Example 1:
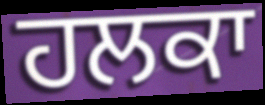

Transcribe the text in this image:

ਹਲਕਾ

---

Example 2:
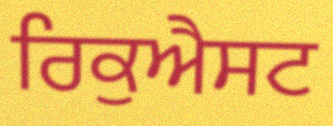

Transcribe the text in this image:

ਰਿਕੁਐਸਟ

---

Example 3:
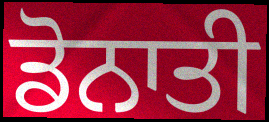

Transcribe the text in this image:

ਡੋਨਾਤੀ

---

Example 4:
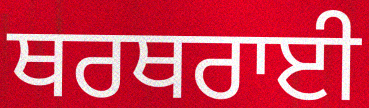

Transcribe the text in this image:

ਥਰਥਰਾਈ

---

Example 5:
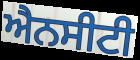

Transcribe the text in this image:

ਐਨਸੀਟੀ